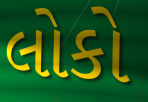
લોકો